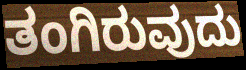
ತಂಗಿರುವುದು